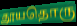
தூயதொரு